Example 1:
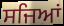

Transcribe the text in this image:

ਸਜਿਆਂ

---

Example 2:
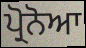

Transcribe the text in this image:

ਪ੍ਰੋਨੋਆ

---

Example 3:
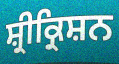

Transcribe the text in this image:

ਸ਼੍ਰੀਕ੍ਰਿਸ਼ਨ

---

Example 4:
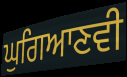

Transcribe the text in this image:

ਘੁਗਿਆਣਵੀ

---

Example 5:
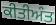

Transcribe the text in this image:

ਕੀਤੀਅੰਤ